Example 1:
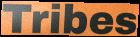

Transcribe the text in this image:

Tribes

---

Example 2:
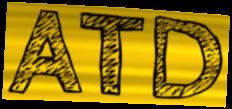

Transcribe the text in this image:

ATD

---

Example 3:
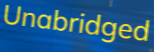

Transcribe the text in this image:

Unabridged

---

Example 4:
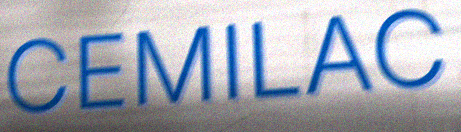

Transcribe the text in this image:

CEMILAC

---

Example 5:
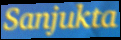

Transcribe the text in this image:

Sanjukta